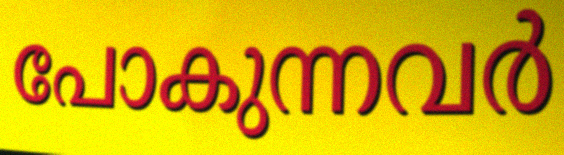
പോകുന്നവർ